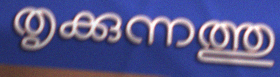
തൃക്കുന്നത്തു